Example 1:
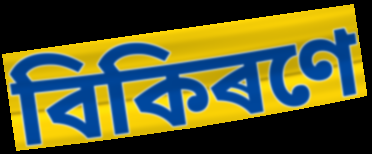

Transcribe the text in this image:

বিকিৰণে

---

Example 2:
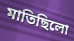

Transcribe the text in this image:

মাতিছিলো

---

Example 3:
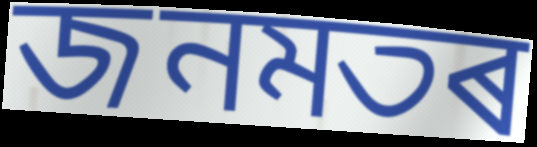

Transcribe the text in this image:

জনমতৰ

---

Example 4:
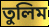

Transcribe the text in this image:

তুলিম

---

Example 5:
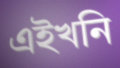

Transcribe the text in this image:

এইখনি